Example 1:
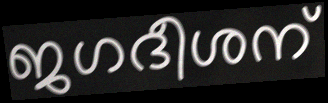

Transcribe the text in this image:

ജഗദീശന്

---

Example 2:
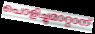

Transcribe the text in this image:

പൊളിച്ചുമാറ്റാന്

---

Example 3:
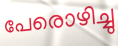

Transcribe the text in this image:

പേരൊഴിച്ചു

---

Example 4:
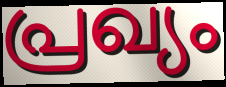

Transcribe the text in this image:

പ്രഖ്യം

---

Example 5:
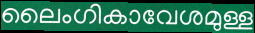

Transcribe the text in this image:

ലൈംഗികാവേശമുള്ള